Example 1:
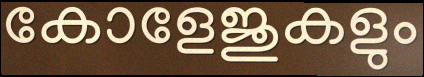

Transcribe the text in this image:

കോളേജുകളും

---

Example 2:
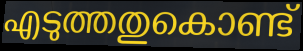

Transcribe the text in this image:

എടുത്തതുകൊണ്ട്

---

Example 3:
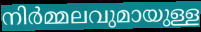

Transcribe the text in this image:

നിർമ്മലവുമായുള്ള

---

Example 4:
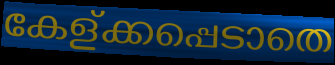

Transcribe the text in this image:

കേള്ക്കപ്പെടാതെ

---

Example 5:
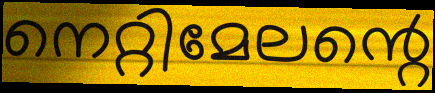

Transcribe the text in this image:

നെറ്റിമേലന്റെ